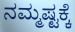
ನಮ್ಮಷ್ಟಕ್ಕೆ